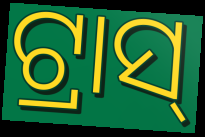
ଟ୍ରାସ୍